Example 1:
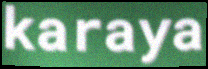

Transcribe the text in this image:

karaya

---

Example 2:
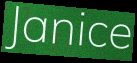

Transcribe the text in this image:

Janice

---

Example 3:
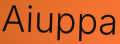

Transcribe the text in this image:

Aiuppa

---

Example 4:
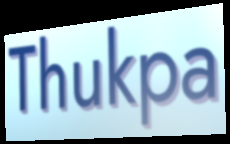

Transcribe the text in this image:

Thukpa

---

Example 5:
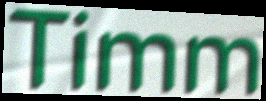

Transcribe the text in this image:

Timm